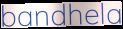
bandhela